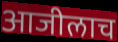
आजीलाच